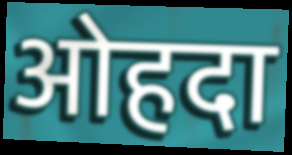
ओहदा